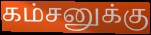
கம்சனுக்கு